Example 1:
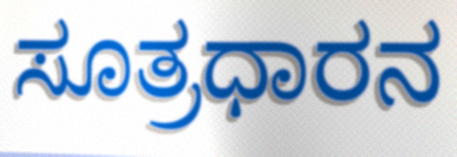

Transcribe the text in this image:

ಸೂತ್ರಧಾರನ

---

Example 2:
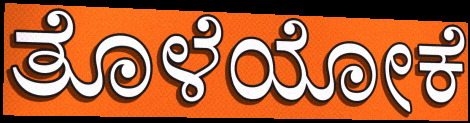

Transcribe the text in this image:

ತೊಳೆಯೋಕೆ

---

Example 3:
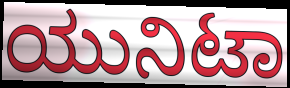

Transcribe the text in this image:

ಯುನಿಟಾ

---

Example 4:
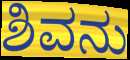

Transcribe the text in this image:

ಶಿವನು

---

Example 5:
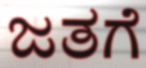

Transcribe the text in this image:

ಜತಗೆ